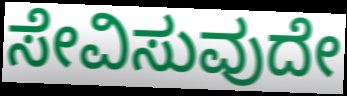
ಸೇವಿಸುವುದೇ